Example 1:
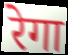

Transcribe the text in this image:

रेगा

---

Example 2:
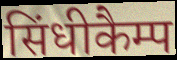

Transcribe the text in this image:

सिंधीकैम्प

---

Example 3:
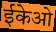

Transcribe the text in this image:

ईकेओ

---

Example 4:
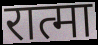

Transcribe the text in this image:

रात्मा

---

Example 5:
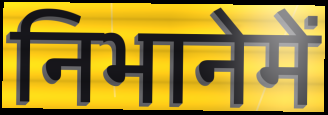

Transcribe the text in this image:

निभानेमें